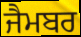
ਜੈਮਬਰ